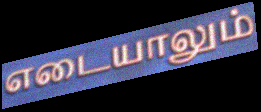
எடையாலும்